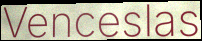
Venceslas